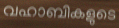
വഹാബികളുടെ